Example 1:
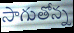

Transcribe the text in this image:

సాగుతోన్న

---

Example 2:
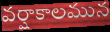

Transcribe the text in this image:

వర్షాకాలమున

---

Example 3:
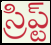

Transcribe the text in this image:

స్రిప్ట్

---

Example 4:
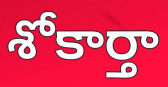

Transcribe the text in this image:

శోకార్తా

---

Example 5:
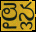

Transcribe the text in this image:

లైన్ల